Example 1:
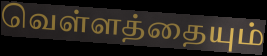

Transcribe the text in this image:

வெள்ளத்தையும்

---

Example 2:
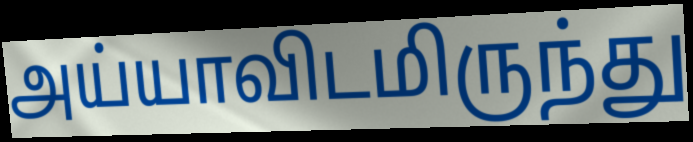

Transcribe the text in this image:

அய்யாவிடமிருந்து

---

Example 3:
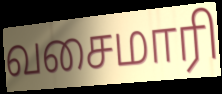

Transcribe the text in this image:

வசைமாரி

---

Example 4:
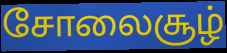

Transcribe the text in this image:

சோலைசூழ்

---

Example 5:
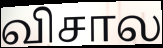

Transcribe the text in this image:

விசால